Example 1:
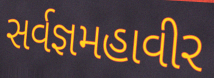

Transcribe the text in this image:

સર્વજ્ઞમહાવીર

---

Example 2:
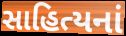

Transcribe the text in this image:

સાહિત્યનાં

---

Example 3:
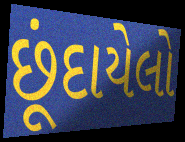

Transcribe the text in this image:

છૂંદાયેલો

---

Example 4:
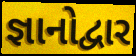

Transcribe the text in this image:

જ્ઞાનોદ્વાર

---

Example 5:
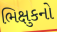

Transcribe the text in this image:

ભિક્ષુકનો